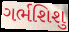
ગર્ભશિશુ